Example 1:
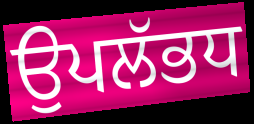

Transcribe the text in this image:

ਉਪਲੱਭਧ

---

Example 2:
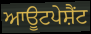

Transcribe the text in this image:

ਆਊਟਪੇਸ਼ੈਂਟ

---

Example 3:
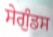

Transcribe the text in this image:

ਸੇਗੁੰਡਸ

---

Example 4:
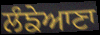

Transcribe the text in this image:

ਲੰਙੇਆਣਾ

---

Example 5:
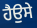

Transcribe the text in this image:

ਹੈਉਸੇ